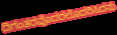
ದಿಗಂತರವೊದರಲೊದರಿಸಿದನು